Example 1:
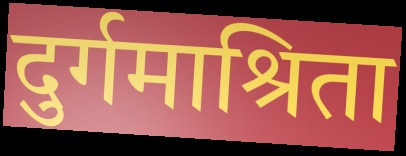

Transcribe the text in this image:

दुर्गमाश्रिता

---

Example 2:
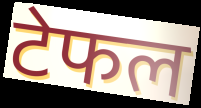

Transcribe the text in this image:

टेफल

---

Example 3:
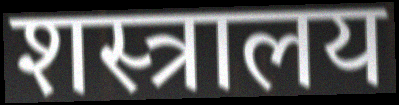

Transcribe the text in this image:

शस्त्रालय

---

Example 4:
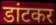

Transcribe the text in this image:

डांटकर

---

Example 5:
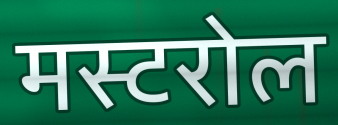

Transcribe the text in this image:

मस्टरोल